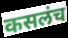
कसलंच